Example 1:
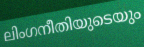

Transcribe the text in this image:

ലിംഗനീതിയുടെയും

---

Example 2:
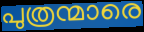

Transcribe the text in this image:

പുത്രന്മാരെ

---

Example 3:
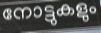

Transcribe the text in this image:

നോട്ടുകളും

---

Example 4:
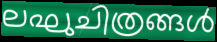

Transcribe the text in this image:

ലഘുചിത്രങ്ങൾ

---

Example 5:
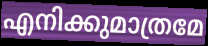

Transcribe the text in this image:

എനിക്കുമാത്രമേ